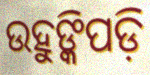
ଉହୁଙ୍କିପଡ଼ି